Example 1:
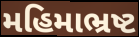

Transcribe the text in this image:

મહિમાભ્રષ્ટ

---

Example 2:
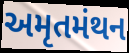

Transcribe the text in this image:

અમૃતમંથન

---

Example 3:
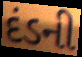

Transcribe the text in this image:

દંડની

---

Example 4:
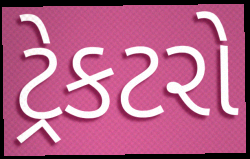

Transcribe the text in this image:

ટ્રેકટરો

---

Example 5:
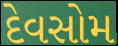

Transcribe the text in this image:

દેવસોમ